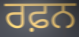
ਰਫ਼ਨ